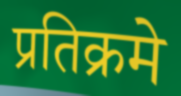
प्रतिक्रमे